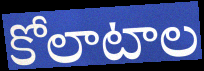
కోలాటాల